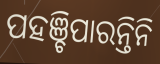
ପହଞ୍ଚିପାରନ୍ତିନି